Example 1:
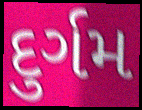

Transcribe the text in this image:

દુર્ગમ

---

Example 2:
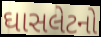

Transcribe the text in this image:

ઘાસલેટનો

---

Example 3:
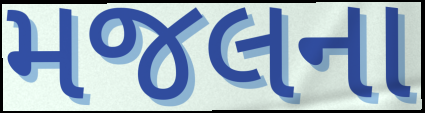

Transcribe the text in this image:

મજલના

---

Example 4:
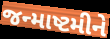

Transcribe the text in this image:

જન્માષ્ટમીને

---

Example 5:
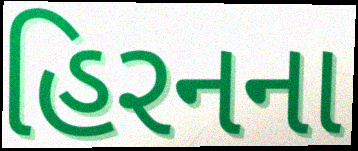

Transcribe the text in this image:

હિરનના